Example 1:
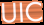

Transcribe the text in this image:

UIC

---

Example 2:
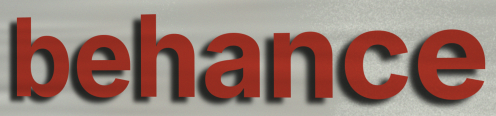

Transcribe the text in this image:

behance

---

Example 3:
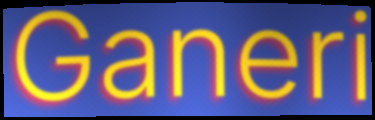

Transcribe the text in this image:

Ganeri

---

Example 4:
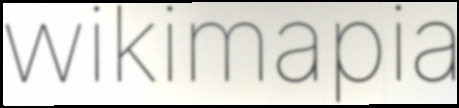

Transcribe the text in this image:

wikimapia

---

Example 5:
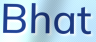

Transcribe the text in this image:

Bhat